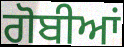
ਗੋਬੀਆਂ